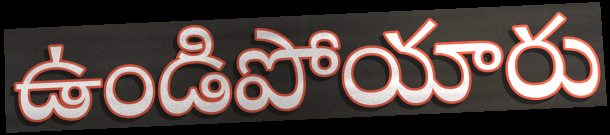
ఉండిపోయారు